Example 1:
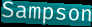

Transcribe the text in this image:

Sampson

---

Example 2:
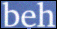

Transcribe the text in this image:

beh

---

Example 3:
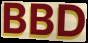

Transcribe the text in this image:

BBD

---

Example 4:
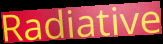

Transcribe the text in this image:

Radiative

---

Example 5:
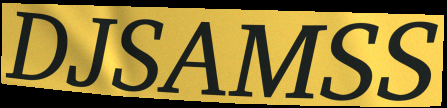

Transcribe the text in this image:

DJSAMSS